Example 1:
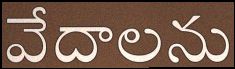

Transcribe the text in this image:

వేదాలను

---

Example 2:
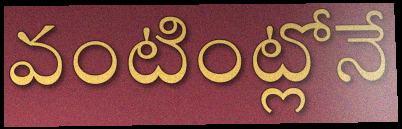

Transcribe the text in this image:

వంటింట్లోనే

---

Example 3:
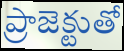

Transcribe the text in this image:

ప్రాజెక్టుతో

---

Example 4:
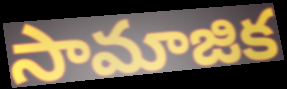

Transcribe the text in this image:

సామాజిక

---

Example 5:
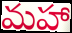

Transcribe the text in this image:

మహా